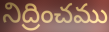
నిద్రించము